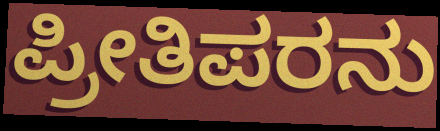
ಪ್ರೀತಿಪರನು